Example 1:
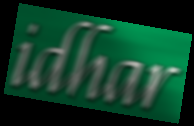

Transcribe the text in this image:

idhar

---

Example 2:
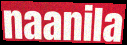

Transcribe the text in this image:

naanila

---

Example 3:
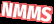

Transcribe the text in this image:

NMMS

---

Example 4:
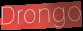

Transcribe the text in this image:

Drongo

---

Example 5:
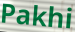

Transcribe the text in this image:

Pakhi